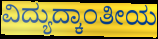
ವಿದ್ಯುದ್ಕಾಂತೀಯ